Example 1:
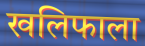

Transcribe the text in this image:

खलिफाला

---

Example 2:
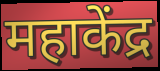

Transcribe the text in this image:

महाकेंद्र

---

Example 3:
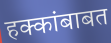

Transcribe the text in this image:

हक्कांबाबत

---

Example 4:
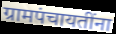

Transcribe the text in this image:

ग्रामपंचायतींना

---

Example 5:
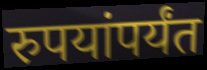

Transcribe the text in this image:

रुपयांपर्यंत